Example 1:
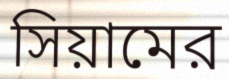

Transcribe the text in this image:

সিয়ামের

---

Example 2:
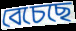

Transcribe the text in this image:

বেচেছে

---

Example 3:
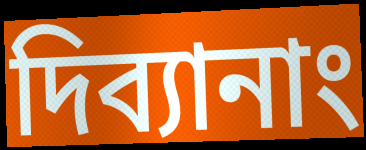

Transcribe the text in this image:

দিব্যানাং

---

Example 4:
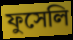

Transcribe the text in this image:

ফুসেলি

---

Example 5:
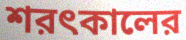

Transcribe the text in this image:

শরৎকালের